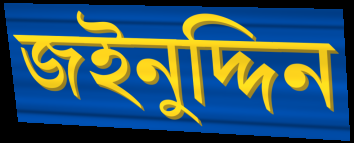
জইনুদ্দিন